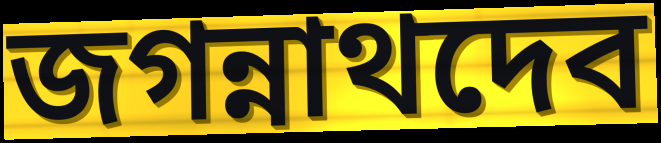
জগন্নাথদেব